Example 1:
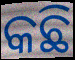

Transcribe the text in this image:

କଛି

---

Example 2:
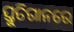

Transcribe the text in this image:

ସ୍ତୁତିଗାନରେ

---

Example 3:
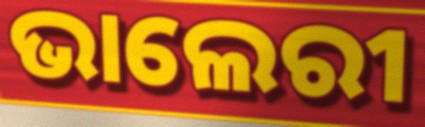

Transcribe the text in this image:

ଭାଲେରୀ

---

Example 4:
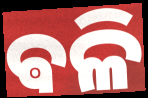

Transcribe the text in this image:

ଵଳି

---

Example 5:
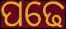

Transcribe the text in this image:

ପଢେ